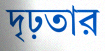
দৃঢ়তার